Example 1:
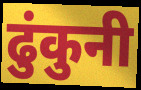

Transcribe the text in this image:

ढुंकुनी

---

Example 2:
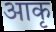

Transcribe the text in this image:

आकृ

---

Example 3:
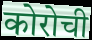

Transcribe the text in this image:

कोरोची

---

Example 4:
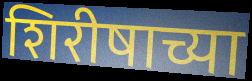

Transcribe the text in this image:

शिरीषाच्या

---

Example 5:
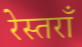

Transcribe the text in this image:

रेस्तराँ